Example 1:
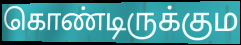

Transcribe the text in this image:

கொண்டிருக்கும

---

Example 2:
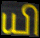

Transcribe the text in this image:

யி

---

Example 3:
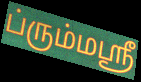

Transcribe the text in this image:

ப்ரும்மஸ்ரீ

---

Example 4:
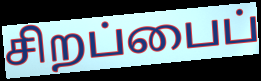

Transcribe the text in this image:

சிறப்பைப்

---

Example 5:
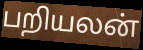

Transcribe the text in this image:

பறியலன்